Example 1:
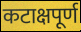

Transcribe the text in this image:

कटाक्षपूर्ण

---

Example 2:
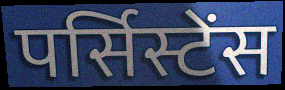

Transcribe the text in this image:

पर्सिस्टेंस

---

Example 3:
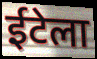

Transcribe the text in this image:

ईटेला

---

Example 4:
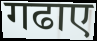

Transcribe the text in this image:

गढाए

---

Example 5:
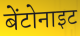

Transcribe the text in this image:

बेंटोनाइट